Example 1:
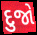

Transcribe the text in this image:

દુજો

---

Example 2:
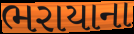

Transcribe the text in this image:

ભરાયાના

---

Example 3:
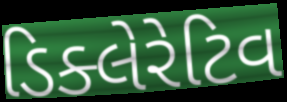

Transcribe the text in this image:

ડિક્લેરેટિવ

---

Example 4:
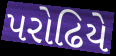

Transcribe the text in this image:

પરોઢિયે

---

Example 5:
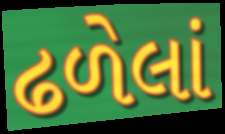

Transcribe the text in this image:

ઢળેલાં